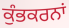
ਕੁੰਭਕਰਨਾਂ